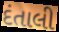
દંતાલી